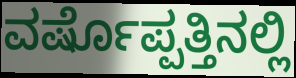
ವರ್ಷೊಪ್ಪತ್ತಿನಲ್ಲಿ